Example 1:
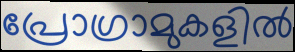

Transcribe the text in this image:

പ്രോഗ്രാമുകളിൽ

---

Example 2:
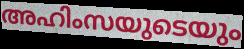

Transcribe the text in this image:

അഹിംസയുടെയും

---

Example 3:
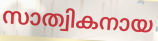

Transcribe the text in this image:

സാത്വികനായ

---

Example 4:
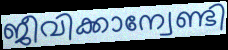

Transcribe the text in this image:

ജീവിക്കാന്വേണ്ടി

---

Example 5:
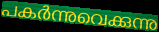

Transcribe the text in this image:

പകർന്നുവെക്കുന്നു